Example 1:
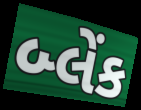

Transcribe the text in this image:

બ્લેંક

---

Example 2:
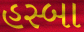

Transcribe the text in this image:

હસ્બા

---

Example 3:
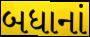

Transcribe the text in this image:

બધાનાં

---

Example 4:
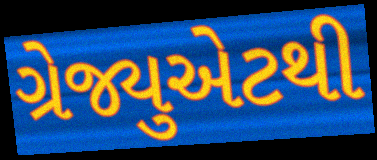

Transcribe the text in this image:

ગ્રેજ્યુએટથી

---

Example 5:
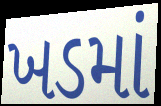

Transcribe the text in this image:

ખડમાં